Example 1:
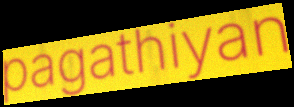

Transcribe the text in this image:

pagathiyan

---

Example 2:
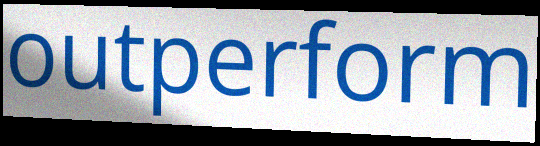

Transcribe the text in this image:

outperform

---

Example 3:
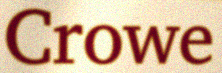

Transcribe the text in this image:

Crowe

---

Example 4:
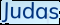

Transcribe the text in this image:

Judas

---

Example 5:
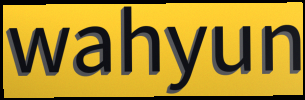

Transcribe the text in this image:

wahyun